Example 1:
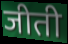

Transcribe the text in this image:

जीती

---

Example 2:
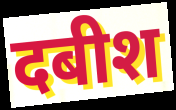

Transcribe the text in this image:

दबीश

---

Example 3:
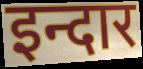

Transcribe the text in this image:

इन्दार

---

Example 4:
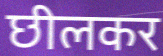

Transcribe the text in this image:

छीलकर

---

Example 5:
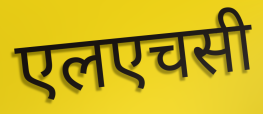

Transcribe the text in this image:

एलएचसी